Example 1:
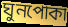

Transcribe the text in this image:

ঘুনপোকা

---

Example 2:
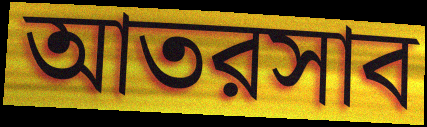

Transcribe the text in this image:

আতরসাব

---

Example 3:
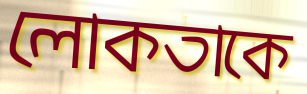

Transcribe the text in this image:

লোকতাকে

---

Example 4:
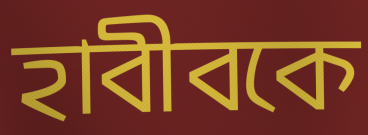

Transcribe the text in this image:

হাবীবকে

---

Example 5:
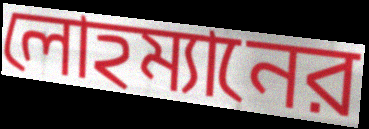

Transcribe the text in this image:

লোহম্যানের